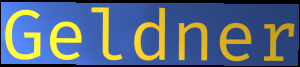
Geldner